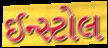
ઈન્સ્ટોલ